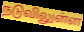
நடுவிலுள்ள